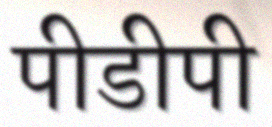
पीडीपी